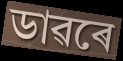
ডাৱৰে